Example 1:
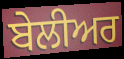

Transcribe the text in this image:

ਬੇਲੀਅਰ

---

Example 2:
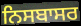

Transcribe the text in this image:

ਨਿਸਬਾਸਰ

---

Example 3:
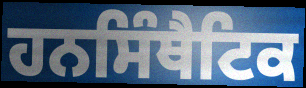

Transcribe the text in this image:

ਹਨਸਿੰਥੈਟਿਕ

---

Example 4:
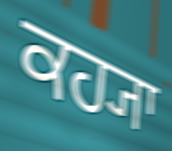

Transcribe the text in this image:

ਕਹ੍ਯਾ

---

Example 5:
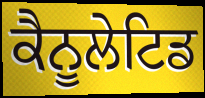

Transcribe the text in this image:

ਕੈਨੂਲੇਟਿਡ